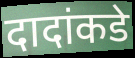
दादांकडे